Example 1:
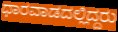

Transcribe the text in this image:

ಧಾರವಾಡದಲ್ಲಿದ್ದರು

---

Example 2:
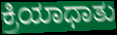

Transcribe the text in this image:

ಕ್ರಿಯಾಧಾತು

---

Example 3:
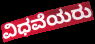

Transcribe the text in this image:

ವಿಧವೆಯರು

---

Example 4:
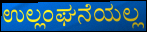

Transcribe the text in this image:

ಉಲ್ಲಂಘನೆಯಲ್ಲ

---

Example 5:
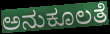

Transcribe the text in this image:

ಅನುಕೂಲತೆ